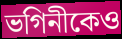
ভগিনীকেও